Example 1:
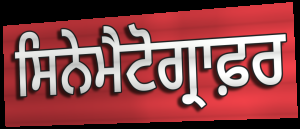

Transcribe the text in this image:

ਸਿਨੇਮੈਟੋਗ੍ਰਾਫ਼ਰ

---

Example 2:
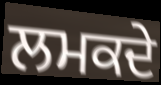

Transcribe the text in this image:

ਲਮਕਦੇ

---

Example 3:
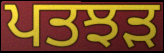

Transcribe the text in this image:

ਪਤਝਡ਼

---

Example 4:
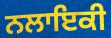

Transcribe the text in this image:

ਨਲਾਇਕੀ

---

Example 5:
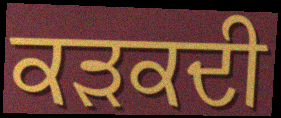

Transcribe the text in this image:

ਕੜਕਦੀ